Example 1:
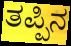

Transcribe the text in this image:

ತಪ್ಪಿನ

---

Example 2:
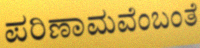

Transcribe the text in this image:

ಪರಿಣಾಮವೆಂಬಂತೆ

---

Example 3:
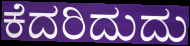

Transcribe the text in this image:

ಕೆದರಿದುದು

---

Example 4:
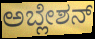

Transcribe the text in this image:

ಅಬ್ಲೇಶನ್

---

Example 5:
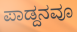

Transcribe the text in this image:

ಪಾಡ್ದನವೂ